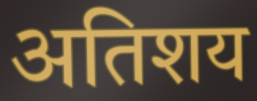
अतिशय